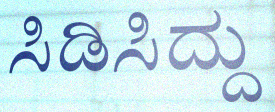
ಸಿಡಿಸಿದ್ದು